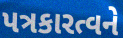
પત્રકારત્વને